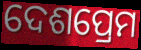
ଦେଶପ୍ରେମ